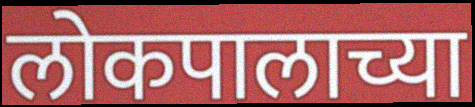
लोकपालाच्या